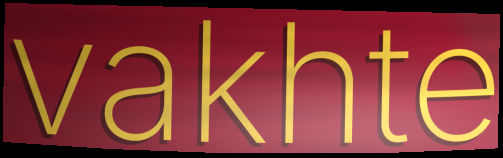
vakhte